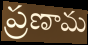
ప్రణామ